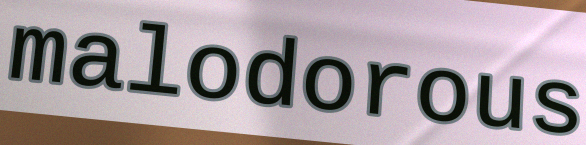
malodorous